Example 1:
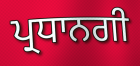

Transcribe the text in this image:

ਪ੍ਰਧਾਨਗੀ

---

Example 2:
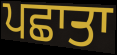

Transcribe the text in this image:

ਪਛਾਤਾ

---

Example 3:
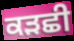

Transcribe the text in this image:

ਕੜਛੀ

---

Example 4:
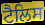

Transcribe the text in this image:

ਟੈਲਿਸ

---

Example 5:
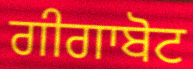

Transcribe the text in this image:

ਗੀਗਾਬੋਟ